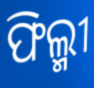
ଫିଲ୍ମୀ